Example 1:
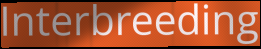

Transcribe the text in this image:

Interbreeding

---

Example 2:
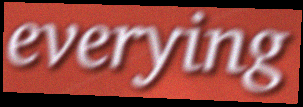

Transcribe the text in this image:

everying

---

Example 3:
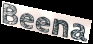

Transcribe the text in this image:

Beena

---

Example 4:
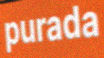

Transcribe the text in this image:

purada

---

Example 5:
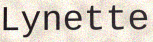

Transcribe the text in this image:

Lynette